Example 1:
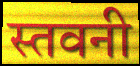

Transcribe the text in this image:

स्तवनी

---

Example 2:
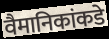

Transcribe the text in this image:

वैमानिकांकडे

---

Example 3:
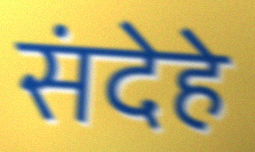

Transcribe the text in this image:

संदेहे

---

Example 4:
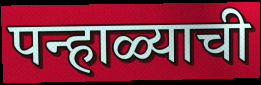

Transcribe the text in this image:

पन्हाळ्याची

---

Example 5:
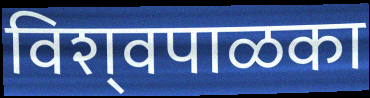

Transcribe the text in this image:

विश्वपाळका